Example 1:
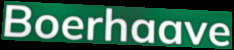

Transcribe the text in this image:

Boerhaave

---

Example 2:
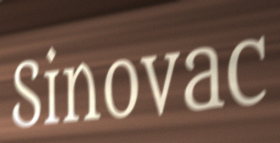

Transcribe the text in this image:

Sinovac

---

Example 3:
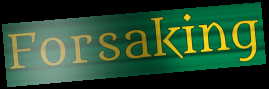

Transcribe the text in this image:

Forsaking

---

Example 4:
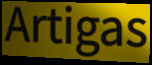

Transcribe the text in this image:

Artigas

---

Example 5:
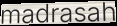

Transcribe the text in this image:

madrasah